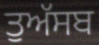
ਤੁਅੱਸਬ